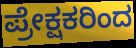
ಪ್ರೇಕ್ಷಕರಿಂದ